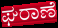
ಘರಾಣೆ